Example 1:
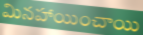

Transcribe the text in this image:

మినహాయించాయి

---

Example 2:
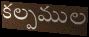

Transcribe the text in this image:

కల్పముల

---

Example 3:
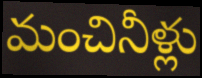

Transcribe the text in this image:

మంచినీళ్లు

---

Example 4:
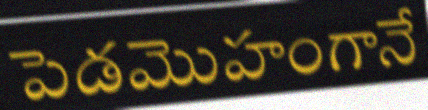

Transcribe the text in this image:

పెడమొహంగానే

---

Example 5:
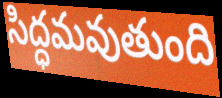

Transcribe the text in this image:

సిద్ధమవుతుంది